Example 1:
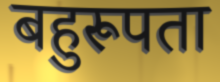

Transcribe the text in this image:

बहुरूपता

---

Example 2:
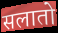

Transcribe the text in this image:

सलातो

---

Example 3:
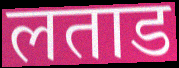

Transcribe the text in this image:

लताड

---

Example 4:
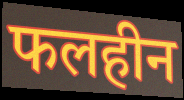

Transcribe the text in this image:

फलहीन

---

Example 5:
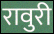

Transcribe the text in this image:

रावुरी